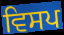
ਵਿਸਪ